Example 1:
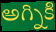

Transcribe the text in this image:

అగ్నికి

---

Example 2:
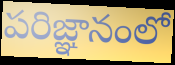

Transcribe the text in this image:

పరిజ్ఞానంలో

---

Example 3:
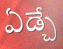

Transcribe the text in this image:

ఏడ్చే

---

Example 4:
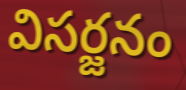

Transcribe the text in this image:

విసర్జనం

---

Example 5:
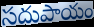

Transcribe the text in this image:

సదుపాయం